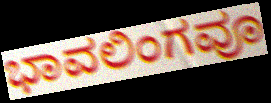
ಭಾವಲಿಂಗವೂ